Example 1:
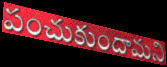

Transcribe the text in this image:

పంచుకుందామని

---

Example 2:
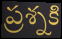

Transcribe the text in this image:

ప్రశ్నకి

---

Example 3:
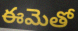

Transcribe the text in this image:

ఈమెతో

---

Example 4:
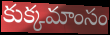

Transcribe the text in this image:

కుక్కమాంసం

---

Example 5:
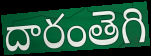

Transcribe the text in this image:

దారంతెగి